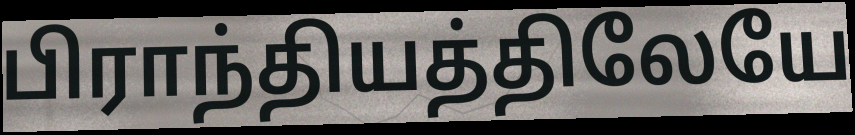
பிராந்தியத்திலேயே